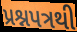
પ્રશ્નપત્રથી